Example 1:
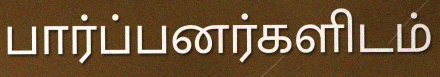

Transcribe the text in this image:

பார்ப்பனர்களிடம்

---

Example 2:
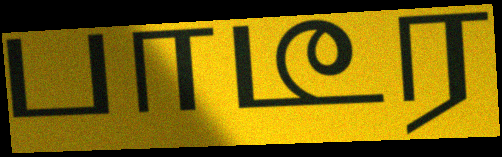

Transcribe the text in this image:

பாடீர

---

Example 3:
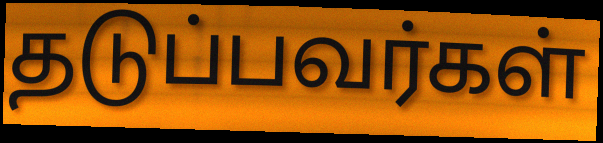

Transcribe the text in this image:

தடுப்பவர்கள்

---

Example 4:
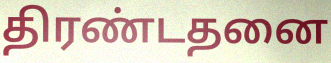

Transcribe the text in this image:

திரண்டதனை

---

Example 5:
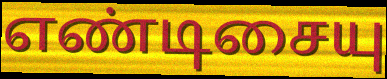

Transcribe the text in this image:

எண்டிசையு